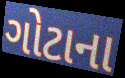
ગોટાના